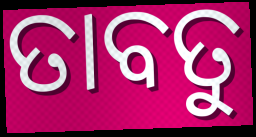
ତାବତୁ